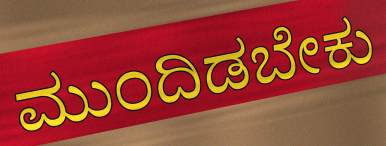
ಮುಂದಿಡಬೇಕು